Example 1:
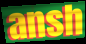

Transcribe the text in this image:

ansh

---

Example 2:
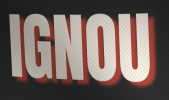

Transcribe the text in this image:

IGNOU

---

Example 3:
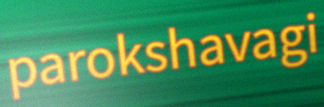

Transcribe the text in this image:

parokshavagi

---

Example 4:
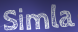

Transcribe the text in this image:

Simla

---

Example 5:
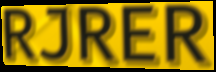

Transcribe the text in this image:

RJRER